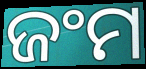
ଜଂମ